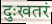
दुःखतरं